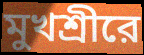
মুখশ্রীরে